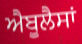
ਐਬੂਲੈਸਾਂ